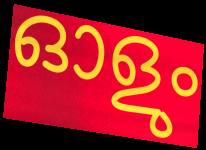
ഓളും